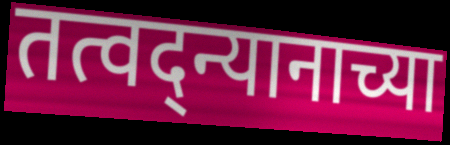
तत्वद्न्यानाच्या